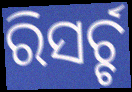
ରିସର୍ଚ୍ଚ